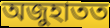
অজুহাতত